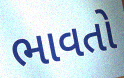
ભાવતો